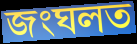
জংঘলত